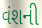
વંશની